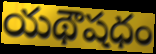
యథౌషధం